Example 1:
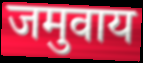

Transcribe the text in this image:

जमुवाय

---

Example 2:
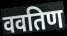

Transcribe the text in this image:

ववतिण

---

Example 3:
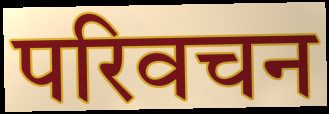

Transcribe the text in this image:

परिवचन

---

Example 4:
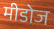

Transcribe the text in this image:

मीडोज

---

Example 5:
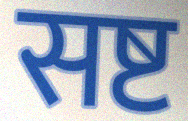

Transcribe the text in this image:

सष्ट